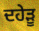
ਦਹੇੜੂ